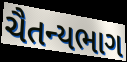
ચૈતન્યભાગ